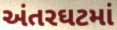
અંતરઘટમાં